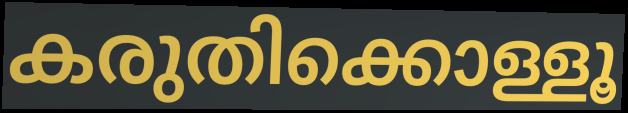
കരുതിക്കൊള്ളൂ